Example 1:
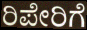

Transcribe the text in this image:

ರಿಪೇರಿಗೆ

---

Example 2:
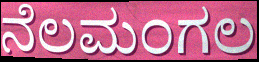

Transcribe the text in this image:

ನೆಲಮಂಗಲ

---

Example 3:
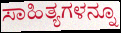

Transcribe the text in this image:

ಸಾಹಿತ್ಯಗಳನ್ನೂ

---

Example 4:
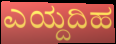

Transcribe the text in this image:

ಎಯ್ದದಿಹ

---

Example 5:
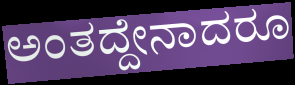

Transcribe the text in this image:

ಅಂತದ್ದೇನಾದರೂ